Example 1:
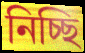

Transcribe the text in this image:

নিচ্ছি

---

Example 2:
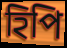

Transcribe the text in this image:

হিপি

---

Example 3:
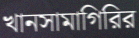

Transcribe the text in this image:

খানসামাগিরির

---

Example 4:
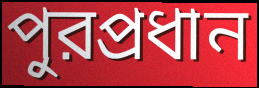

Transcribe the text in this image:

পুরপ্রধান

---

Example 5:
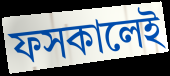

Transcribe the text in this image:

ফসকালেই